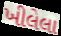
ખીલેલા